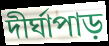
দীর্ঘাপাড়